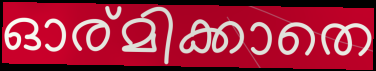
ഓര്മിക്കാതെ